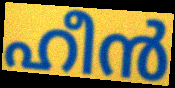
ഹീൻ